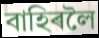
বাহিৰলৈ